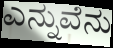
ಎನ್ನುವೆನು